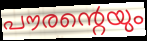
പൗരന്റെയും